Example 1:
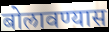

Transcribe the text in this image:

बोलावण्यास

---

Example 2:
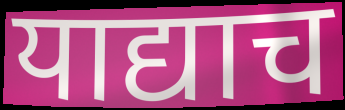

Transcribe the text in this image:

याद्याच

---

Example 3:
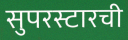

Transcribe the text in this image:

सुपरस्टारची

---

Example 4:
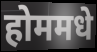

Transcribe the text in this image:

होममधे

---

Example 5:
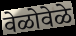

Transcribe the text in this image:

वेळोवेळे